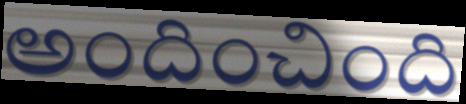
అందించింది